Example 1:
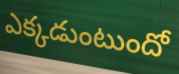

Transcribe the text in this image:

ఎక్కడుంటుందో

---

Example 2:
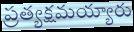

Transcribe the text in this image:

ప్రత్యక్షమయ్యారు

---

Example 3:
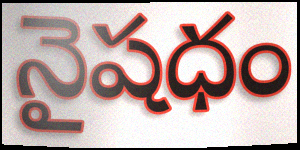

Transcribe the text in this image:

నైషధం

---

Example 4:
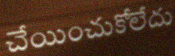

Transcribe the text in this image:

చేయించుకోలేదు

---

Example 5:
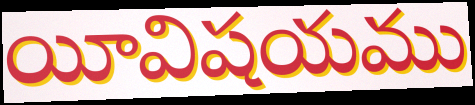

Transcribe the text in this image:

యీవిషయము